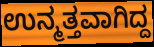
ಉನ್ಮತ್ತವಾಗಿದ್ದ